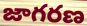
జాగరణ